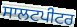
ਸਾਲਟਪੀਟਰ